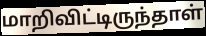
மாறிவிட்டிருந்தாள்